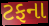
ટફના